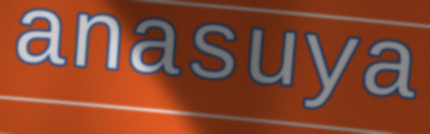
anasuya